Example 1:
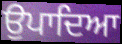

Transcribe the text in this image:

ਉਪਾਦਿਆ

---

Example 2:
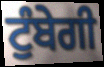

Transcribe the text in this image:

ਟੁੰਬੇਗੀ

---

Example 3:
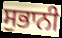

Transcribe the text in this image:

ਸੁਭਾਨੀ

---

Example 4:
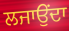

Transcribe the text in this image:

ਲਜਾਉਂਦਾ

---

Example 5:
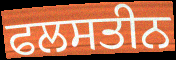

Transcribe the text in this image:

ਫਲਸਤੀਨ